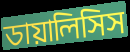
ডায়ালিসিস